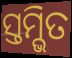
ସ୍ତମ୍ଭିତ